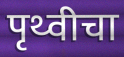
पृथ्वीचा